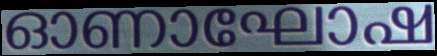
ഓണാഘോഷ